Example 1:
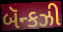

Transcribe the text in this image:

બૅન્કઝી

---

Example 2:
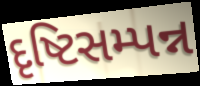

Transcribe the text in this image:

દૃષ્ટિસમ્પન્ન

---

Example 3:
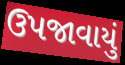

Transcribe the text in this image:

ઉપજાવાયું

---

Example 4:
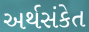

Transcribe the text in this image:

અર્થસંકેત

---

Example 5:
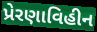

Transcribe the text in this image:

પ્રેરણાવિહીન